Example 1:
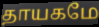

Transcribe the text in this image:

தாயகமே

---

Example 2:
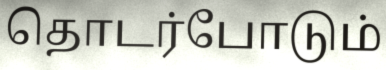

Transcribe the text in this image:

தொடர்போடும்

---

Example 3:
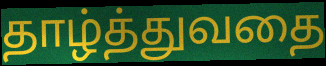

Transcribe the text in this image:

தாழ்த்துவதை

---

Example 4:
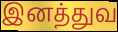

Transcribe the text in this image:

இனத்துவ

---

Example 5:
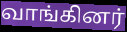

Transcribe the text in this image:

வாங்கினர்